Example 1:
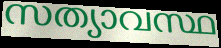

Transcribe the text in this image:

സത്യാവസ്ഥ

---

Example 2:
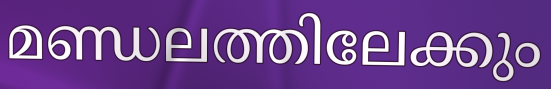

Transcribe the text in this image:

മണ്ഡലത്തിലേക്കും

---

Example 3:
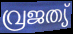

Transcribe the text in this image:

വ്രജത്യ്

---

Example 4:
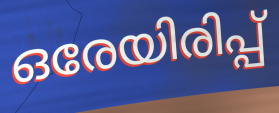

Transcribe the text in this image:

ഒരേയിരിപ്പ്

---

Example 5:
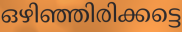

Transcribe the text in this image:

ഒഴിഞ്ഞിരിക്കട്ടെ